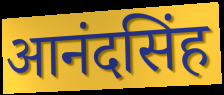
आनंदसिंह